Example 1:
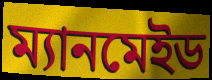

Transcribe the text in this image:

ম্যানমেইড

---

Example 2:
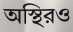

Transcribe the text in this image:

অস্থিরও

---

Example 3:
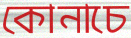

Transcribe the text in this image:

কোনাচে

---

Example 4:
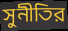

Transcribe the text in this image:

সুনীতির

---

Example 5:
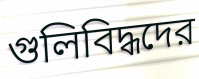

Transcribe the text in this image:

গুলিবিদ্ধদের